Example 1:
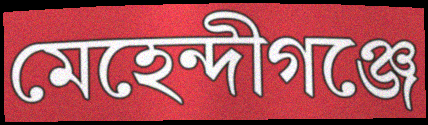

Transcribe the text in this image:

মেহেন্দীগঞ্জে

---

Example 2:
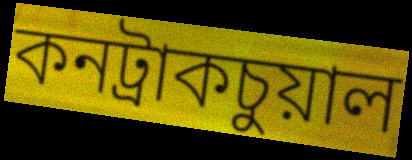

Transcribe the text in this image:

কনট্রাকচুয়াল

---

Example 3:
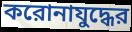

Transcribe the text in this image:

করোনাযুদ্ধের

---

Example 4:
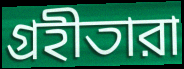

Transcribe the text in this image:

গ্রহীতারা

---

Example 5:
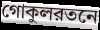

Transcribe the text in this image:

গোকুলরতনে